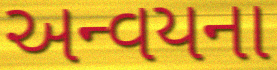
અન્વયના